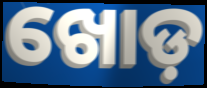
ଖୋଡ଼